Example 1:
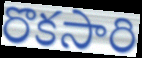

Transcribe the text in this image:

రొకసారి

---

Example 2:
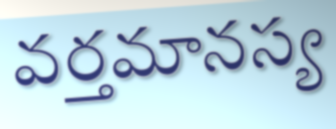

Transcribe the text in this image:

వర్తమానస్య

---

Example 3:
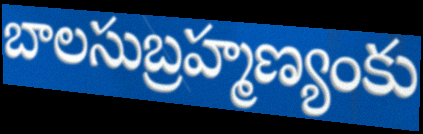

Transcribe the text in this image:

బాలసుబ్రహ్మణ్యంకు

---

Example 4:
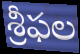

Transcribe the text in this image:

శ్రీఫల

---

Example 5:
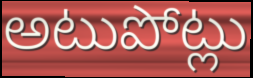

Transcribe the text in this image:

అటుపోట్లు